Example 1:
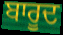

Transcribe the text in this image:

ਬਾਰੂਦ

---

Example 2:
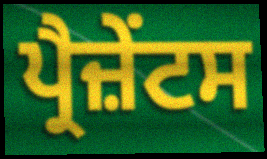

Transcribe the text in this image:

ਪ੍ਰੈਜ਼ੇਂਟਸ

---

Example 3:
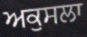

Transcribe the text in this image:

ਅਕੁਸਲਾ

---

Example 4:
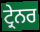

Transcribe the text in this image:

ਟ੍ਰੇਨਰ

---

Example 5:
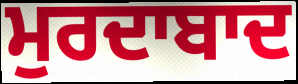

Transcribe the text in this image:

ਮੁਰਦਾਬਾਦ